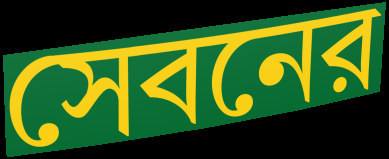
সেবনের